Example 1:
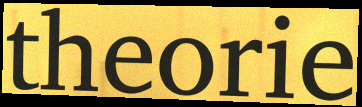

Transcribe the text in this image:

theorie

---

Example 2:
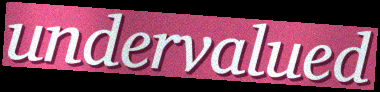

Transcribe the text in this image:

undervalued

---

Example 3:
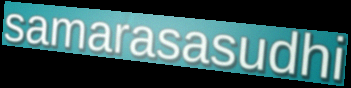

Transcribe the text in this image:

samarasasudhi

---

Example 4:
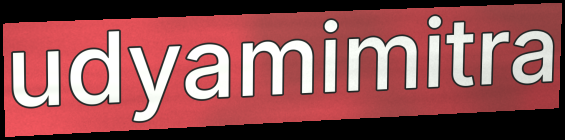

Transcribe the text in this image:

udyamimitra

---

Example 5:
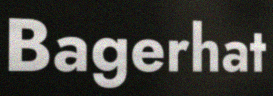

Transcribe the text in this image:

Bagerhat